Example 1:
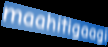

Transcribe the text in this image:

maahitigaagi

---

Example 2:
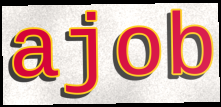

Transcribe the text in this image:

ajob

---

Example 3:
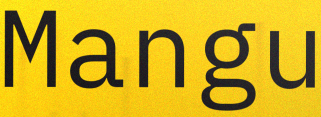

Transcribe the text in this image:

Mangu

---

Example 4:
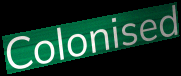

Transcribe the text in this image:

Colonised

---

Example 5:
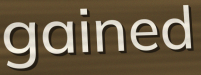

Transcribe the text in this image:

gained